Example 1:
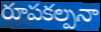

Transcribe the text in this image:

రూపకల్పనా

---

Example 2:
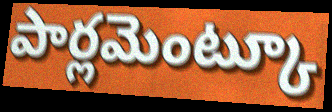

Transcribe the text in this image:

పార్లమెంట్కూ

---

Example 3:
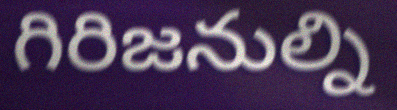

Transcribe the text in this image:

గిరిజనుల్ని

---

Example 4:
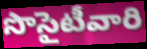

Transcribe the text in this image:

సొసైటీవారి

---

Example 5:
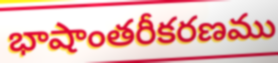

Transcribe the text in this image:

భాషాంతరీకరణము